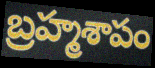
బ్రహ్మశాపం